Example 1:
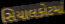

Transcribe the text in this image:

સિયાલકોટમાં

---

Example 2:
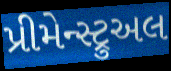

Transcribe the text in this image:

પ્રીમેન્સ્ટ્રુઅલ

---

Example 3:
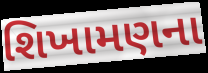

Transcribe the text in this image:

શિખામણના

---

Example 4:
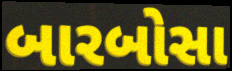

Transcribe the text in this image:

બારબોસા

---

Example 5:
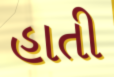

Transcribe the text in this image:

હાતી